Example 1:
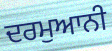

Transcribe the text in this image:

ਦਰਮੁਆਨੀ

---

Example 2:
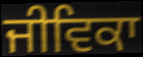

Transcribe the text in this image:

ਜੀਵਿਕਾ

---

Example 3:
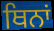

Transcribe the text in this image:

ਥਿਨਾਂ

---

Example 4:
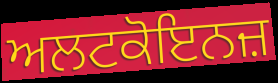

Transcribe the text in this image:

ਅਲਟਕੋਇਨਜ਼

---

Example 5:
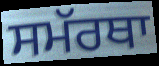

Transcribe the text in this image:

ਸਮੱਰਥਾ